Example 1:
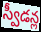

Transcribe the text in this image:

స్వీడన్ల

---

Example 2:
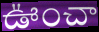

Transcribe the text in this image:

ఊంచా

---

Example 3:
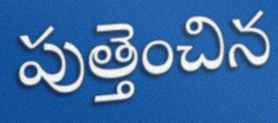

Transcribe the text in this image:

పుత్తెంచిన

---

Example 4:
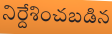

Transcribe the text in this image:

నిర్దేశించబడిన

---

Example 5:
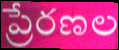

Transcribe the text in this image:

ప్రేరణల